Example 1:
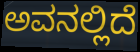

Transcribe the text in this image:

ಅವನಲ್ಲಿದೆ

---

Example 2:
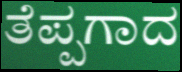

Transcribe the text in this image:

ತೆಪ್ಪಗಾದ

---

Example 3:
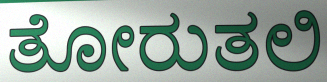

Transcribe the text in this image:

ತೋರುತಲಿ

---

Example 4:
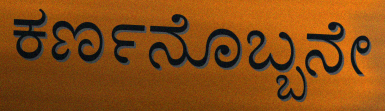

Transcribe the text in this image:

ಕರ್ಣನೊಬ್ಬನೇ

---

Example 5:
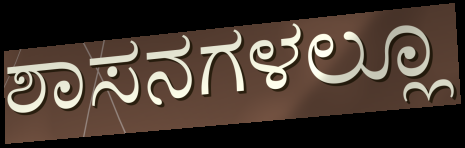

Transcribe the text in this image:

ಶಾಸನಗಳಲ್ಲೂ